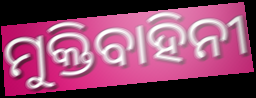
ମୁକ୍ତିବାହିନୀ